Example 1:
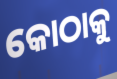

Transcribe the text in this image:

କୋଠାକୁ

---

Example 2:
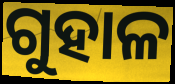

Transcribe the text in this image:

ଗୁହାଳ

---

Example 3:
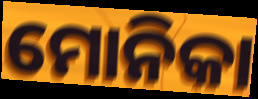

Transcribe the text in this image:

ମୋନିକା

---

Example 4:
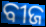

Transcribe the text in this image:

ବୀଜ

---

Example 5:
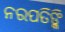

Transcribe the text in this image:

ନରପତିଙ୍କି